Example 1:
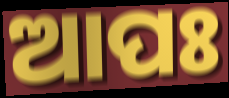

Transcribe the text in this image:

ଆପଃ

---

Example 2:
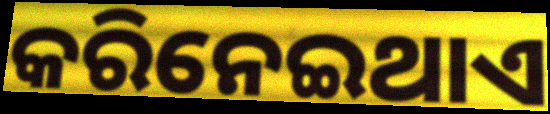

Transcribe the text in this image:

କରିନେଇଥାଏ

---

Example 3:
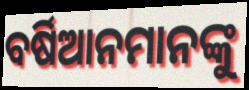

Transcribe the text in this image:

ବର୍ଷିଆନମାନଙ୍କୁ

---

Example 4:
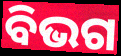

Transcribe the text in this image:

ବିଭଗ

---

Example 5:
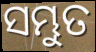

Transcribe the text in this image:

ସମ୍ଭୁତ